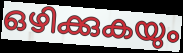
ഒഴിക്കുകയും